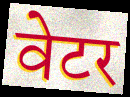
वेटर